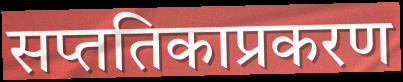
सप्ततिकाप्रकरण